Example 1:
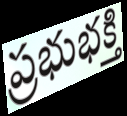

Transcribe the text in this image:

ప్రభుభక్తి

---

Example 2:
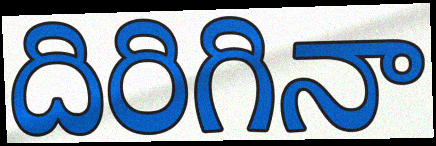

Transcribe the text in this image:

దిరిగినా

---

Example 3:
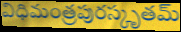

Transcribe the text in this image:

విధిమంత్రపురస్కృతమ్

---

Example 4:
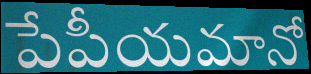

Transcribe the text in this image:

పేపీయమానో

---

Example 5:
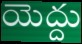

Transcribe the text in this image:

యెద్దు